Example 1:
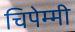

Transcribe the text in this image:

चिपेम्मी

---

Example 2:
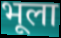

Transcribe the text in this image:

भूला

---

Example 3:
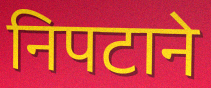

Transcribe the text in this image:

निपटाने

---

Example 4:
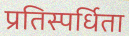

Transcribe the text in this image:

प्रतिस्पर्धिता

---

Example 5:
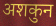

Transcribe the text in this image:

अशकुन